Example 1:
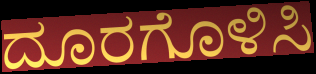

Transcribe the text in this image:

ದೂರಗೊಳಿಸಿ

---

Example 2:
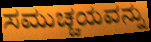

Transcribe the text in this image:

ಸಮುಚ್ಚಯವನ್ನು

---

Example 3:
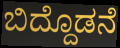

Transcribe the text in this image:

ಬಿದ್ದೊಡನೆ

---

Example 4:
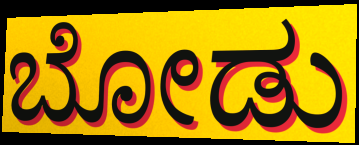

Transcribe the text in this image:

ಬೋಡು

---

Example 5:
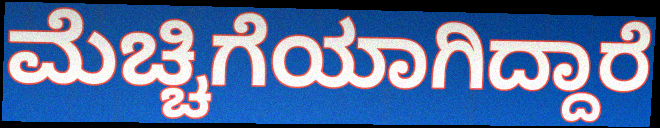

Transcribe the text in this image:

ಮೆಚ್ಚಿಗೆಯಾಗಿದ್ದಾರೆ